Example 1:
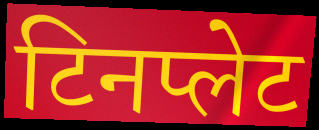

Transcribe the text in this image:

टिनप्लेट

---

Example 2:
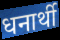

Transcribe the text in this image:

धनार्थी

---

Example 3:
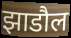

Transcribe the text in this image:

झाडौल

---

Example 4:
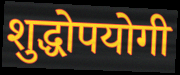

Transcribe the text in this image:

शुद्धोपयोगी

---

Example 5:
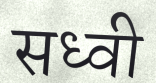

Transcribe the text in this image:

सध्वी